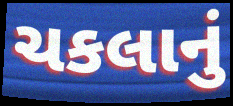
ચકલાનું